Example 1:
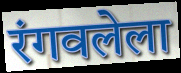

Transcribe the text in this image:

रंगवलेला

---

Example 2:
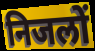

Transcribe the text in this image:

निजलों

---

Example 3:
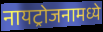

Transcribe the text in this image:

नायट्रोजनामध्ये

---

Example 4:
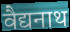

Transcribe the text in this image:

वैद्यनाथ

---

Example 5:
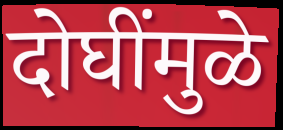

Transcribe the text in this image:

दोघींमुळे